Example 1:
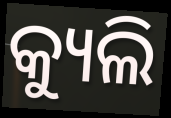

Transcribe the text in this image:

କ୍ୟୁଲି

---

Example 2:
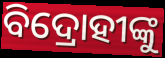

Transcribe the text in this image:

ବିଦ୍ରୋହୀଙ୍କୁ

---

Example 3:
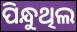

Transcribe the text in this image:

ପିନ୍ଧୁଥିଲ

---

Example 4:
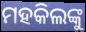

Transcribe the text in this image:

ମହକିଲଙ୍କୁ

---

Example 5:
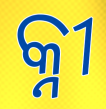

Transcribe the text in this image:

କ୍ନୀ